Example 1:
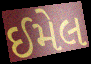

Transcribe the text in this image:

ઈમેલ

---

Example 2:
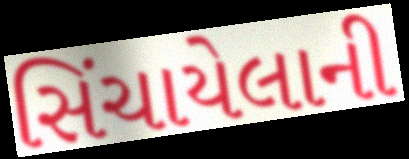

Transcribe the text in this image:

સિંચાયેલાની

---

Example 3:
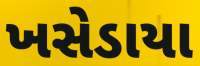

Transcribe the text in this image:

ખસેડાયા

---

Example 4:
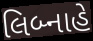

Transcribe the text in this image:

લિબ્નાહે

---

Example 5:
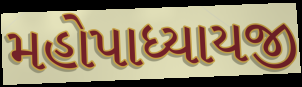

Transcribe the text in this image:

મહોપાધ્યાયજી